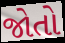
જોતો